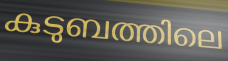
കുടുബത്തിലെ